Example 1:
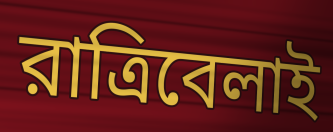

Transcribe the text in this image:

রাত্রিবেলাই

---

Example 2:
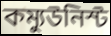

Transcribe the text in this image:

কম্যুউনিস্ট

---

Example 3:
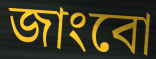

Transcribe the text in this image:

জাংবো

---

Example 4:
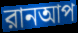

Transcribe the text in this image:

রানআপ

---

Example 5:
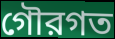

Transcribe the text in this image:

গৌরগত